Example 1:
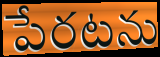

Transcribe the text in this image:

పేరటను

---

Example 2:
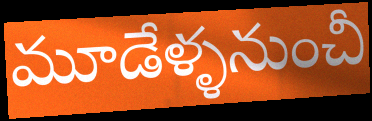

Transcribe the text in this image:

మూడేళ్ళనుంచీ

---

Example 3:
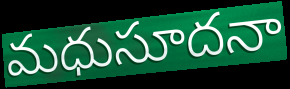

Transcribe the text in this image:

మధుసూదనా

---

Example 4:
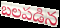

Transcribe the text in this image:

బలపడిన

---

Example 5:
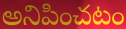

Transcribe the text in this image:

అనిపించటం